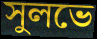
সুলভে